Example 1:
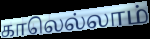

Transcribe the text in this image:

காலெல்லாம்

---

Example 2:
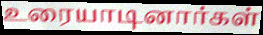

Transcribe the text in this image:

உரையாடினார்கள்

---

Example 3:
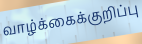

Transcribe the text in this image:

வாழ்க்கைக்குறிப்பு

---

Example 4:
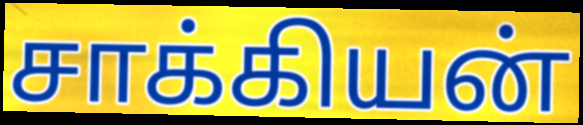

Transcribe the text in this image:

சாக்கியன்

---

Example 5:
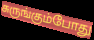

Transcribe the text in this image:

சுருங்கும்போது